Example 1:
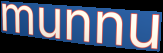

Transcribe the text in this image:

munnu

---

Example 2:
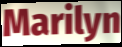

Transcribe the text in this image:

Marilyn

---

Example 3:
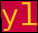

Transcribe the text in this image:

yl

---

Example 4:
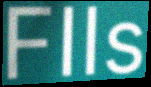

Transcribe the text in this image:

FIIs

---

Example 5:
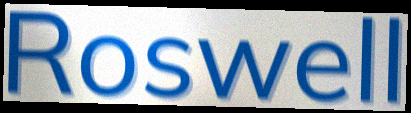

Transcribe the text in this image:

Roswell